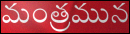
మంత్రమున